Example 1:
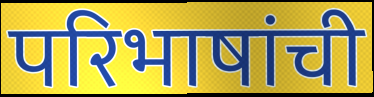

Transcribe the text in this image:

परिभाषांची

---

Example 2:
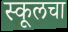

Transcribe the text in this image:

स्कूलचा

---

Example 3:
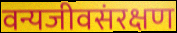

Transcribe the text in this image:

वन्यजीवसंरक्षण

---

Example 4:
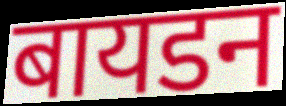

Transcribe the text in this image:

बायडन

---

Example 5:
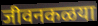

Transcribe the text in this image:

जीवनकळया